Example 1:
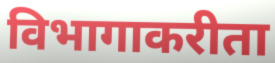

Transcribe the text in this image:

विभागाकरीता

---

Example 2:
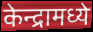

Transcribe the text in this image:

केन्द्रामध्ये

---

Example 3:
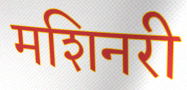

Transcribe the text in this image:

मशिनरी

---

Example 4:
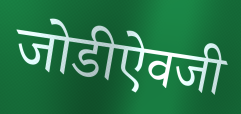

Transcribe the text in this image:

जोडीऐवजी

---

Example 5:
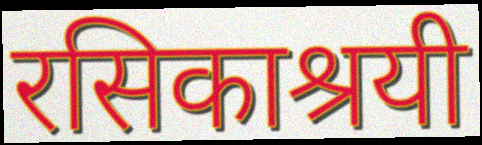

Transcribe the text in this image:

रसिकाश्रयी